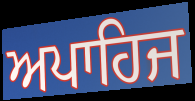
ਅਪਾਹਿਜ